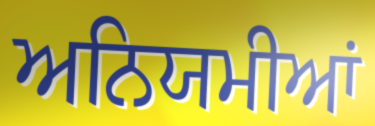
ਅਨਿਯਮੀਆਂ